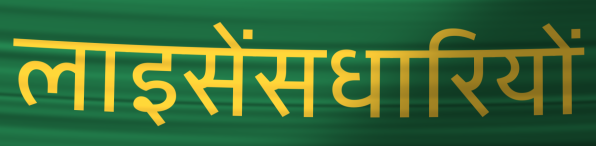
लाइसेंसधारियों